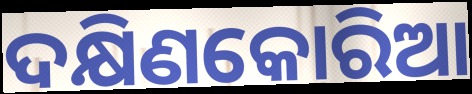
ଦକ୍ଷିଣକୋରିଆ